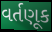
વર્તણૂક